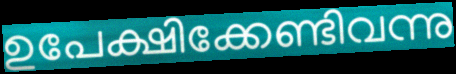
ഉപേക്ഷിക്കേണ്ടിവന്നു